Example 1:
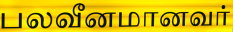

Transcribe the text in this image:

பலவீனமானவர்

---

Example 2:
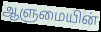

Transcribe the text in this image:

ஆளுமையின்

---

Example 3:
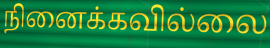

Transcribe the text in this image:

நினைக்கவில்லை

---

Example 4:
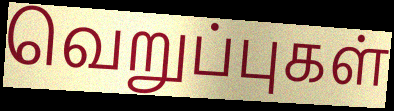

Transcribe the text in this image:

வெறுப்புகள்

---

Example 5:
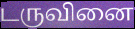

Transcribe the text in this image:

டருவினை